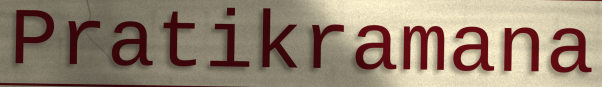
Pratikramana